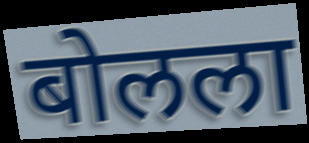
बोलला